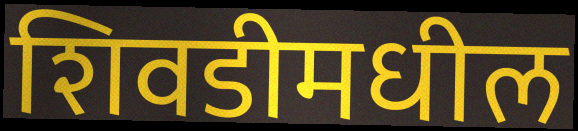
शिवडीमधील